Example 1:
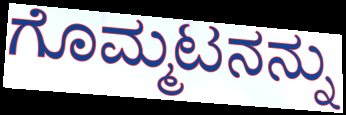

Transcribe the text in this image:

ಗೊಮ್ಮಟನನ್ನು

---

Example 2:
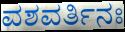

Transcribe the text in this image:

ವಶವರ್ತಿನಃ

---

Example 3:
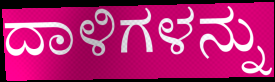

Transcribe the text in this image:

ದಾಳಿಗಳನ್ನು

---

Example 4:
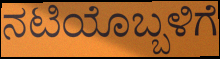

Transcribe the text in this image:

ನಟಿಯೊಬ್ಬಳಿಗೆ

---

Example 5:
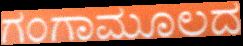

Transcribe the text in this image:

ಗಂಗಾಮೂಲದ